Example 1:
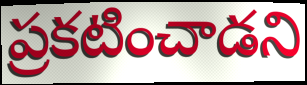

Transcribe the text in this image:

ప్రకటించాడని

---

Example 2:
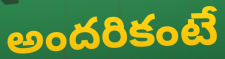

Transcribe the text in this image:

అందరికంటే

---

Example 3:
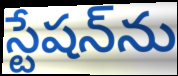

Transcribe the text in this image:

స్టేషన్‌ను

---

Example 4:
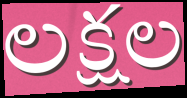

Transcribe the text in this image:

లక్షల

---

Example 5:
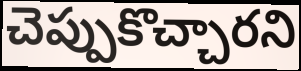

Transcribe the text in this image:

చెప్పుకొచ్చారని